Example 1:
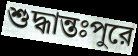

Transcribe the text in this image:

শুদ্ধান্তঃপুরে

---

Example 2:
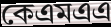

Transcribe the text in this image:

কেএমএএ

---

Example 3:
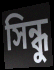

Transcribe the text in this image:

সিন্ধু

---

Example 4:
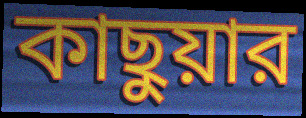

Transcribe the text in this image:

কাছুয়ার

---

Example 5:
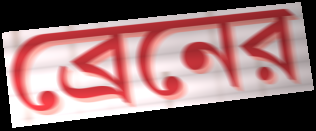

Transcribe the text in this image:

ব্রেনের